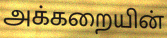
அக்கறையின்